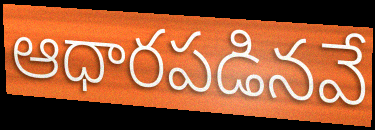
ఆధారపడినవే